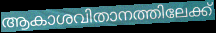
ആകാശവിതാനത്തിലേക്ക്